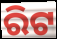
ରିଟ